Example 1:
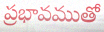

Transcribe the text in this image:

ప్రభావముతో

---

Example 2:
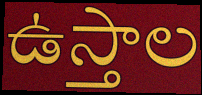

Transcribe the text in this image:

ఉస్తాల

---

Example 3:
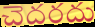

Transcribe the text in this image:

చెదరదు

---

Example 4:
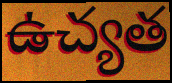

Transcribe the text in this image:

ఉచ్యత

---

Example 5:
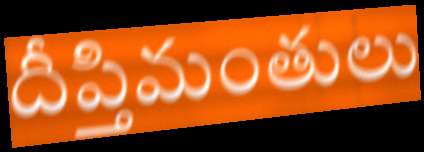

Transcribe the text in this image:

దీప్తిమంతులు